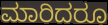
ಮಾರಿದರೂ